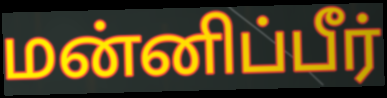
மன்னிப்பீர்